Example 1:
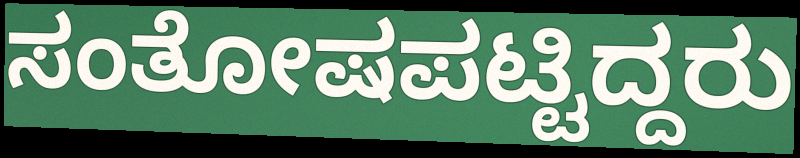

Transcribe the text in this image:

ಸಂತೋಷಪಟ್ಟಿದ್ದರು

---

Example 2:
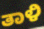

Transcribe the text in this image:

ತಾಳಿ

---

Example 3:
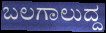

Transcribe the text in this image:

ಬಲಗಾಲುದ್ದ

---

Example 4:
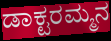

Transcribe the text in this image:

ಡಾಕ್ಟರಮ್ಮನ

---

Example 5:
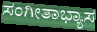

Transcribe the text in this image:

ಸಂಗೀತಾಭ್ಯಾಸ